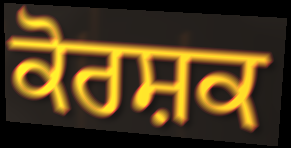
ਕੋਰਸ਼ਕ